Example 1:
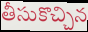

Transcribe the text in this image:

తీసుకొచ్చిన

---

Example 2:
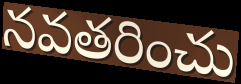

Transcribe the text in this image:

నవతరించు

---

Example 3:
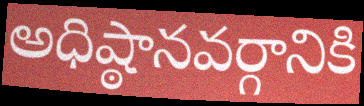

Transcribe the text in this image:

అధిష్ఠానవర్గానికి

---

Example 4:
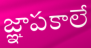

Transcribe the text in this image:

జ్ఞాపకాలే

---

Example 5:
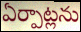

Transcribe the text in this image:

ఏర్పాట్లను